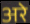
अरे